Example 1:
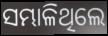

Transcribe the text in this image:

ସମ୍ଭାଳିଥିଲେ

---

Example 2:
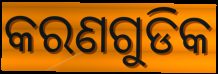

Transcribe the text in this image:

କରଣଗୁଡିକ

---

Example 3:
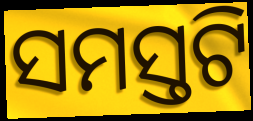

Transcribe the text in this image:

ସମସ୍ତଟି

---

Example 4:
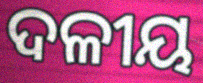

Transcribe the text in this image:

ଦଳୀୟ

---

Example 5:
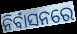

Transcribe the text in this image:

ନିର୍ବାସନରେ